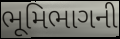
ભૂમિભાગની